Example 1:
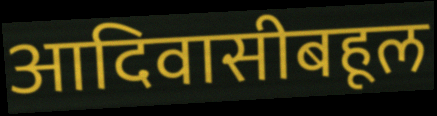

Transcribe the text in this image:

आदिवासीबहूल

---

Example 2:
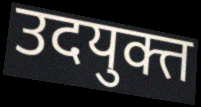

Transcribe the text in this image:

उदयुक्त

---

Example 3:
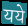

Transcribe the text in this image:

यये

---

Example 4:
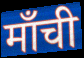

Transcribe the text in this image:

माँची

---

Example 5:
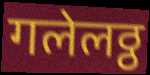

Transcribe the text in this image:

गलेलठ्ठ